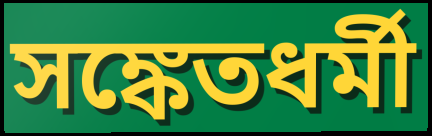
সঙ্কেতধর্মী